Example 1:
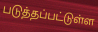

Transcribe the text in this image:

படுத்தப்பட்டுள்ள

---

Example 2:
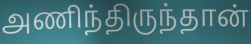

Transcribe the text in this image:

அணிந்திருந்தான்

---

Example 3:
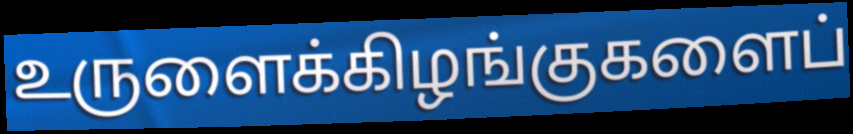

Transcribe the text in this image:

உருளைக்கிழங்குகளைப்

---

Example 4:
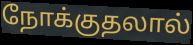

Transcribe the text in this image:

நோக்குதலால்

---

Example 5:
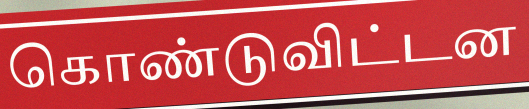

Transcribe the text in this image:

கொண்டுவிட்டன